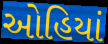
ઓહિયાં